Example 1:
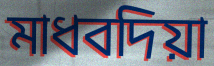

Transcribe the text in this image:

মাধবদিয়া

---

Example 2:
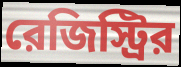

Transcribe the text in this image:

রেজিস্ট্রির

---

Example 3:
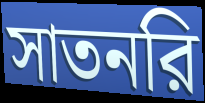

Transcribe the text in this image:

সাতনরি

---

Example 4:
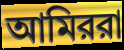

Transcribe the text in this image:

আমিররা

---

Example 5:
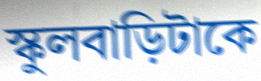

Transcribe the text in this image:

স্কুলবাড়িটাকে